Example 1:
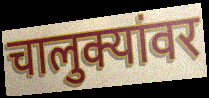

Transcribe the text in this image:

चालुक्यांवर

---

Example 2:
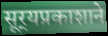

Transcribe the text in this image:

सूर्यप्रकाशाने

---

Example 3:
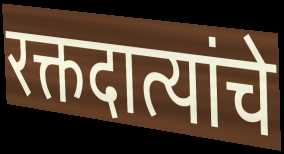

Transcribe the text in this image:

रक्तदात्यांचे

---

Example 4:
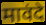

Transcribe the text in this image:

मावंदे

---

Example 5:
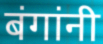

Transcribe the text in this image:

बंगांनी